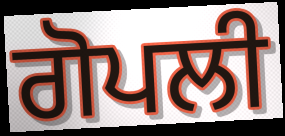
ਗੋਪਲੀ